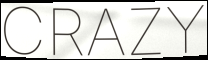
CRAZY